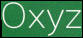
Oxyz